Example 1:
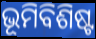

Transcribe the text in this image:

ଭୂମିବିଶିଷ୍ଟ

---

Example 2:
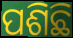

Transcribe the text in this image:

ପଶିଛି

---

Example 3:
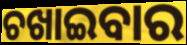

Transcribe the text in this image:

ଚଖାଇବାର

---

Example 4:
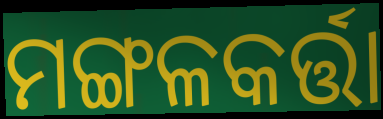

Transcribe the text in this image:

ମଙ୍ଗଳକର୍ତ୍ତା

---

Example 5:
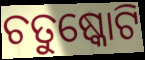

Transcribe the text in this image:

ଚତୁଷ୍କୋଟି